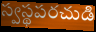
స్వస్థపరచుడి